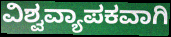
ವಿಶ್ವವ್ಯಾಪಕವಾಗಿ